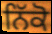
ਨਿੱਕੋ